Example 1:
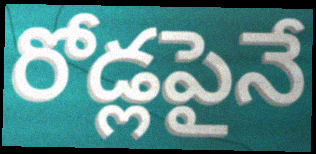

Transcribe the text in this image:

రోడ్లపైనే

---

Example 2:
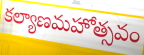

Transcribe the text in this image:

కల్యాణమహోత్సవం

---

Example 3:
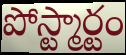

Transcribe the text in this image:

పోస్ట్మార్టం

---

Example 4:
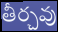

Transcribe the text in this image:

తీర్చవు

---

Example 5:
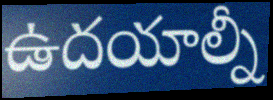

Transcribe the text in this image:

ఉదయాల్నీ